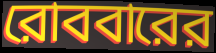
রোববারের